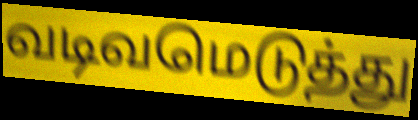
வடிவமெடுத்து